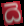
దె